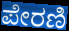
ಪೇರಣಿ